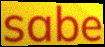
sabe